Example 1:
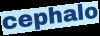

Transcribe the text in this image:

cephalo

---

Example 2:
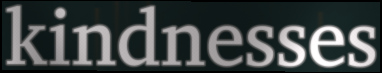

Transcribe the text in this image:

kindnesses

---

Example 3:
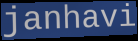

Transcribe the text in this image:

janhavi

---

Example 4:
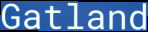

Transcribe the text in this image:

Gatland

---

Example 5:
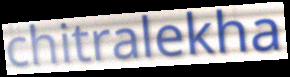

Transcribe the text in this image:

chitralekha